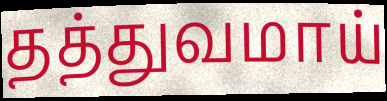
தத்துவமாய்